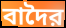
বাদৈর